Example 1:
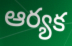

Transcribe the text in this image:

ఆర్యక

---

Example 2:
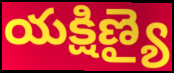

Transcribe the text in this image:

యక్షిణ్యై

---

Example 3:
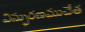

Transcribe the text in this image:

విస్ఫురణముచేత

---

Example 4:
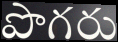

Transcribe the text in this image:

పొగరు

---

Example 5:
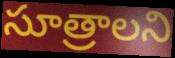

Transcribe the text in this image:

సూత్రాలని